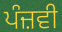
ਪੰਜ਼ਵੀ